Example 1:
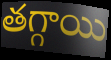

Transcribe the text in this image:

తగ్గాయి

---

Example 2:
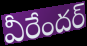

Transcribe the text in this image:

వీరేందర్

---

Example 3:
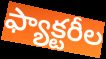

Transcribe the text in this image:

ఫ్యాక్టరీల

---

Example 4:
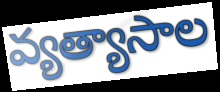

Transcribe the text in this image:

వ్యత్యాసాల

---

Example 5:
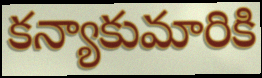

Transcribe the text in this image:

కన్యాకుమారికి